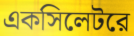
একসিলেটরে